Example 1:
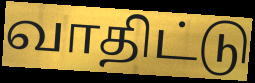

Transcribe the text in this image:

வாதிட்டு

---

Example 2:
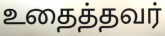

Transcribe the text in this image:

உதைத்தவர்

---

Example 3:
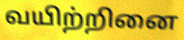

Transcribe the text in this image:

வயிற்றினை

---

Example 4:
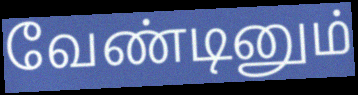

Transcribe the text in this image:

வேண்டினும்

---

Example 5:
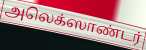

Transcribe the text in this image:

அலெக்ஸாண்டர்